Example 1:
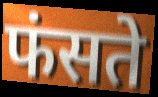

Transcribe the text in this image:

फंसते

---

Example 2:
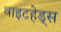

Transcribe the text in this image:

वाइटहेड्स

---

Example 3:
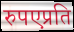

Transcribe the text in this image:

रुपएप्रति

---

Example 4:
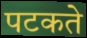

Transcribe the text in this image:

पटकते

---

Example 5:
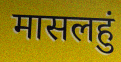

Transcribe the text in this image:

मासलहुं